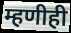
म्हणीही